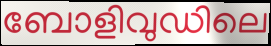
ബോളിവുഡിലെ